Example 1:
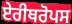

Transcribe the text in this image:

ਏਰੀਥਰੋਪਸ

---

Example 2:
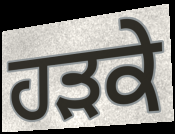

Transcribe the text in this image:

ਹੜਕੇ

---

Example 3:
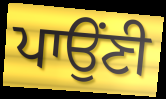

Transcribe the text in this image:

ਪਾਉਂਣੀ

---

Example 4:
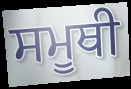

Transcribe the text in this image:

ਸਮੂਥੀ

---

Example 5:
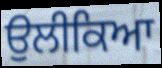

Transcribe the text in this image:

ਉਲੀਕਿਆ